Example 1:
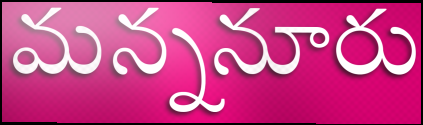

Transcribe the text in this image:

మన్ననూరు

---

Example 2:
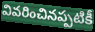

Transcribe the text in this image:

వివరించినప్పటికీ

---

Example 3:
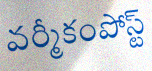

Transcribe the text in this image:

వర్మీకంపోస్ట్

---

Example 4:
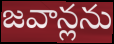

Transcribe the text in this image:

జవాన్లను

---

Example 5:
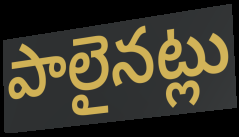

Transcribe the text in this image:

పాలైనట్లు